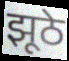
झूठे